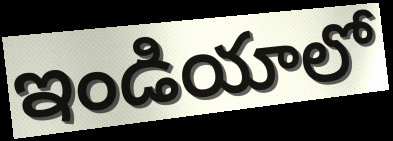
ఇండియాలో